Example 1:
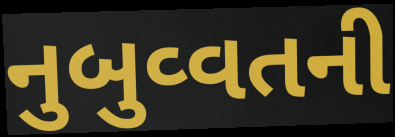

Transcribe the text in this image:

નુબુવ્વતની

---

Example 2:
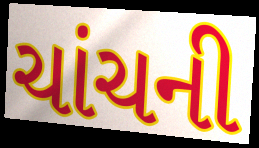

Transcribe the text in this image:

ચાંચની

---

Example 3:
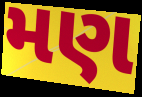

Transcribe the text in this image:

મણ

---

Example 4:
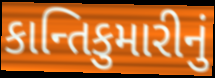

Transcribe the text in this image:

કાન્તિકુમારીનું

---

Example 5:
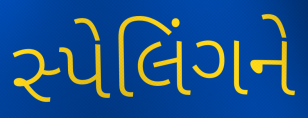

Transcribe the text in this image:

સ્પેલિંગને